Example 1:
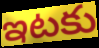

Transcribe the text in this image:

ఇటకు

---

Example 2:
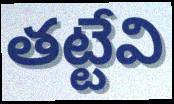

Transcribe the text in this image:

తట్టేవి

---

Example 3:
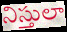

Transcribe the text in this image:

నిస్తులా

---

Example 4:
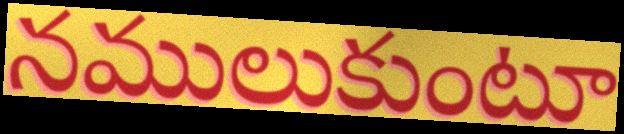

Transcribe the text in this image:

నములుకుంటూ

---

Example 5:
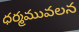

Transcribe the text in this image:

ధర్మమువలన